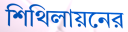
শিথিলায়নের